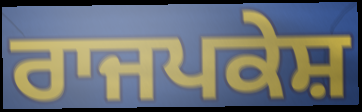
ਰਾਜਪਕੇਸ਼